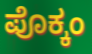
ಪೊಕ್ಕಂ